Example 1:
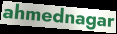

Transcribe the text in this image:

ahmednagar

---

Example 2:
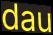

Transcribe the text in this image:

dau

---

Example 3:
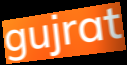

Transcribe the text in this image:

gujrat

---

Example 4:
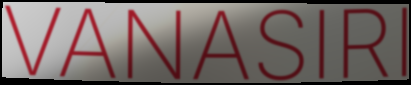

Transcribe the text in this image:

VANASIRI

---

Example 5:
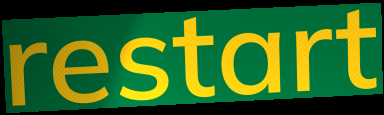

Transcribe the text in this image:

restart